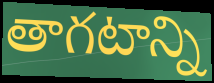
తాగటాన్ని